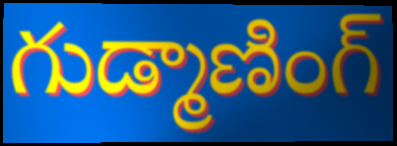
గుడ్మాణింగ్